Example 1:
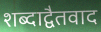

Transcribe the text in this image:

शब्दाद्वैतवाद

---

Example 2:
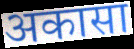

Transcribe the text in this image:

अकासा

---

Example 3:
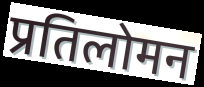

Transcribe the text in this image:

प्रतिलोमन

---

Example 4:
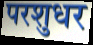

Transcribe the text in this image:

परशुधर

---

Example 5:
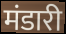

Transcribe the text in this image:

मंडारी